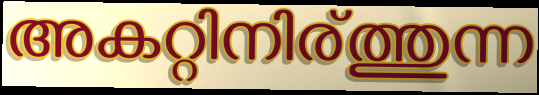
അകറ്റിനിര്ത്തുന്ന